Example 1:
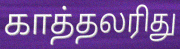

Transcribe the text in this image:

காத்தலரிது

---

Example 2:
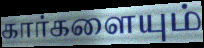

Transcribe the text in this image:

கார்களையும்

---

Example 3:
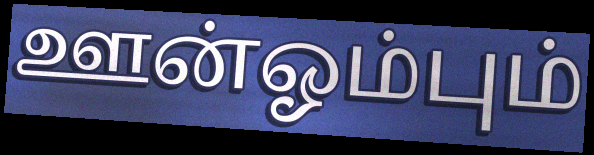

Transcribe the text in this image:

ஊன்ஓம்பும்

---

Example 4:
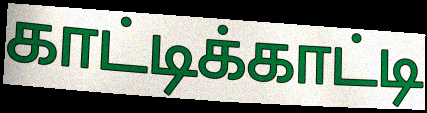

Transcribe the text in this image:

காட்டிக்காட்டி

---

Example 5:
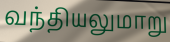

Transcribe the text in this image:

வந்தியலுமாறு